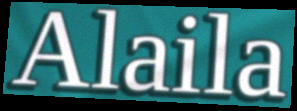
Alaila